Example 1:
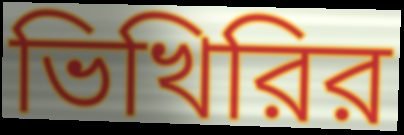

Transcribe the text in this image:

ভিখিরির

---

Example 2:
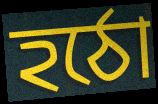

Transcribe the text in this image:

হঠো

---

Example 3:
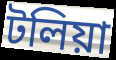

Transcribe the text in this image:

টলিয়া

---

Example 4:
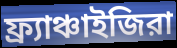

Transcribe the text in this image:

ফ্র্যাঞ্চাইজিরা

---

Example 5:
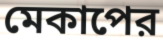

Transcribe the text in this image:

মেকাপের